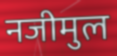
नजीमुल